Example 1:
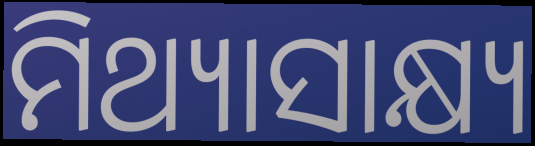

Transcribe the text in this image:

ମିଥ୍ୟାସାକ୍ଷ୍ୟ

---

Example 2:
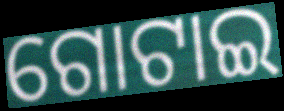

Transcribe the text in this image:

ଗୋଟାଇ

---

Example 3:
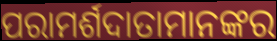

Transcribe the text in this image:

ପରାମର୍ଶଦାତାମାନଙ୍କର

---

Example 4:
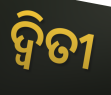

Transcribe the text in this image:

ଦ୍ୱିତୀ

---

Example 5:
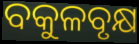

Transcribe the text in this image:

ବକୁଳବୃକ୍ଷ